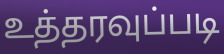
உத்தரவுப்படி